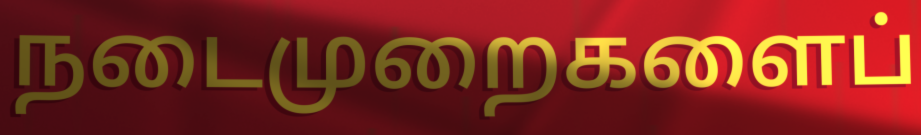
நடைமுறைகளைப்